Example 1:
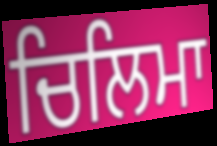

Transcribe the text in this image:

ਚਿਲਿਮਾ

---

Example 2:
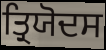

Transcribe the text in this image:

ਤ੍ਰਿਯੋਦਸ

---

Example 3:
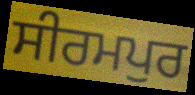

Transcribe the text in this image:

ਸੀਰਮਪੁਰ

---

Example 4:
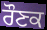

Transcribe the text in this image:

ਰੌਣਕ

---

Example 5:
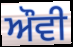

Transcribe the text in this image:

ਔਵੀ